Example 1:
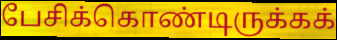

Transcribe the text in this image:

பேசிக்கொண்டிருக்கக்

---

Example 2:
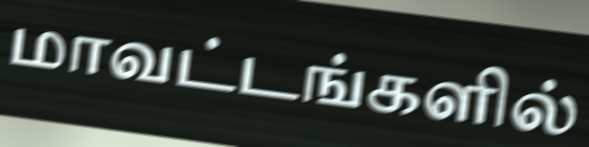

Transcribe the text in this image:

மாவட்டங்களில்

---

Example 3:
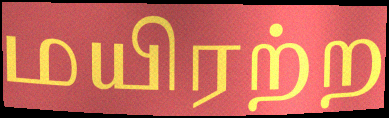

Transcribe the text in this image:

மயிரற்ற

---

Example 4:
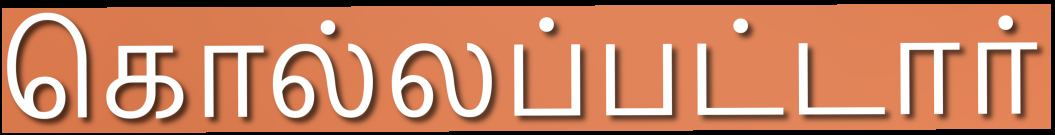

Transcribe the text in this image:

கொல்லப்பட்டார்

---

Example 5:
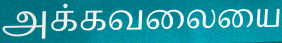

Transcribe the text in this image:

அக்கவலையை